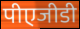
पीएजीडी